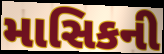
માસિકની